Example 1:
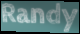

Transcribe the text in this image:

Randy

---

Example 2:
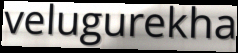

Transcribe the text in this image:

velugurekha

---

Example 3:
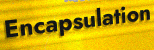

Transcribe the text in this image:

Encapsulation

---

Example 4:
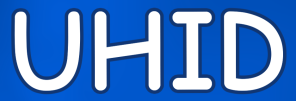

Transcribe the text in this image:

UHID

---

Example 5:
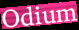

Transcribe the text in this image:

Odium